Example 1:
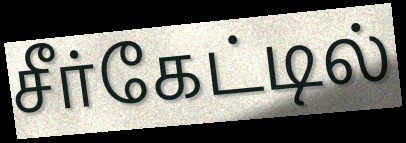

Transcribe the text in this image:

சீர்கேட்டில்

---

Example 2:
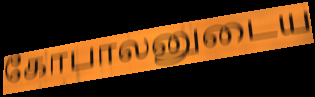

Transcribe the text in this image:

கோபாலனுடைய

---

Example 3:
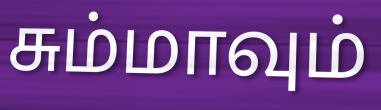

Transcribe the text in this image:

சும்மாவும்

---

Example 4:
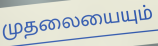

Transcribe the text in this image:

முதலையையும்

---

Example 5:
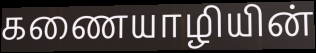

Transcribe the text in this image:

கணையாழியின்